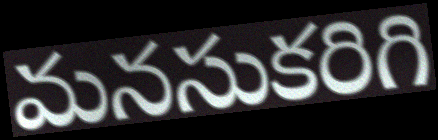
మనసుకరిగి